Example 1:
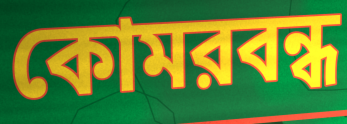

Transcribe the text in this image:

কোমরবন্ধ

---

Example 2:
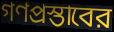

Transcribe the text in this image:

গণপ্রস্তাবের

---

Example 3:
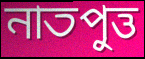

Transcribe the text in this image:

নাতপুত্ত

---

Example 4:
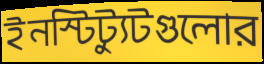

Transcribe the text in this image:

ইনস্টিট্যুটগুলোর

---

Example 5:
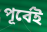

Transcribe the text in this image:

পূর্বেই